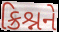
ક્રિશ્નને